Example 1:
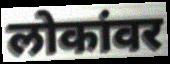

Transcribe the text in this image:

लोकांवर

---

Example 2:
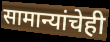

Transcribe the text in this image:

सामान्यांचेही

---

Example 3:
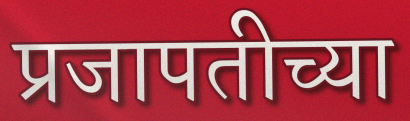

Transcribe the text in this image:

प्रजापतीच्या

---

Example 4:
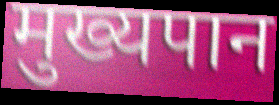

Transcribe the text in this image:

मुख्यपान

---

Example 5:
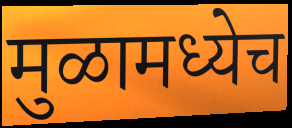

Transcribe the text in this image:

मुळामध्येच